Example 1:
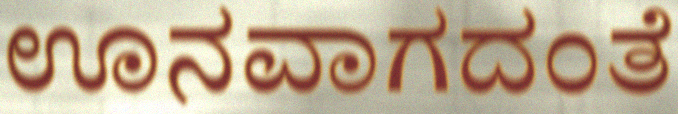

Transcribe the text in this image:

ಊನವಾಗದಂತೆ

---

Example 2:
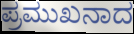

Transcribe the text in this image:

ಪ್ರಮುಖನಾದ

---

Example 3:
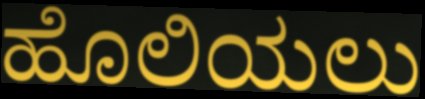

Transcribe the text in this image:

ಹೊಲಿಯಲು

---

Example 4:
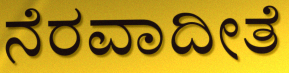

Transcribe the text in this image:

ನೆರವಾದೀತೆ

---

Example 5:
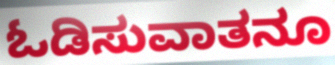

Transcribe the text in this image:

ಓಡಿಸುವಾತನೂ